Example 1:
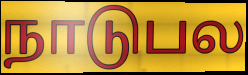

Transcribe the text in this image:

நாடுபல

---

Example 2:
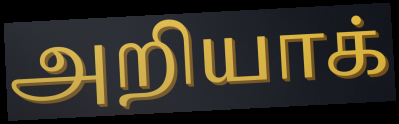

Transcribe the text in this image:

அறியாக்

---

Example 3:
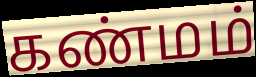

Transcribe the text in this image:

கண்மம்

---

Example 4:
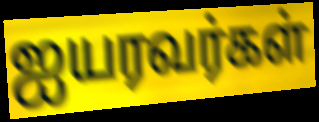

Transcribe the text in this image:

ஐயரவர்கள்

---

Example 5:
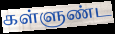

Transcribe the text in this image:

கள்ளுண்ட